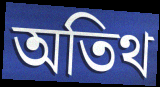
অতিথ